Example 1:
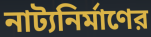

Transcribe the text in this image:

নাট্যনির্মাণের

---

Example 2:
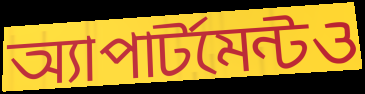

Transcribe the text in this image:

অ্যাপার্টমেন্টও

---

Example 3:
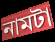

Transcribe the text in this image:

নামটা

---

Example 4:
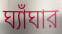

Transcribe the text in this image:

ঘ্যাঁঘার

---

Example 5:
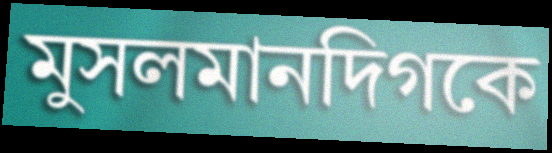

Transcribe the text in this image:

মুসলমানদিগকে